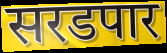
सरडपार